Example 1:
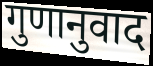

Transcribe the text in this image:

गुणानुवाद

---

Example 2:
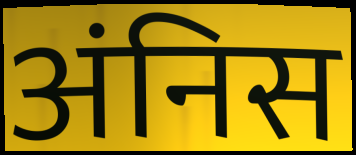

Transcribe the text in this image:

अंनिस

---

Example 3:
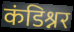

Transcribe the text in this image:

कंडिश्नर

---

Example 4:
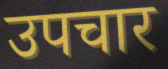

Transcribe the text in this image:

उपचार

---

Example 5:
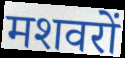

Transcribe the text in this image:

मशवरों